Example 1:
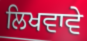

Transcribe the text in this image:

ਲਿਖਵਾਵੇ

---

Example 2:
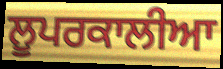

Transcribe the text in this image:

ਲੂਪਰਕਾਲੀਆ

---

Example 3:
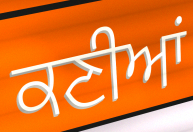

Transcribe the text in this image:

ਕਣੀਆਂ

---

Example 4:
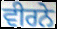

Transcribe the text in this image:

ਵੀਰਨੇ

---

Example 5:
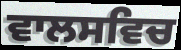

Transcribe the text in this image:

ਵਾਲਸਵਿਚ